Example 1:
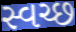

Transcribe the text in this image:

સ્વચ્છ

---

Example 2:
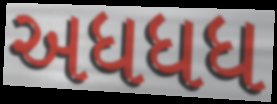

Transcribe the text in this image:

અધધધ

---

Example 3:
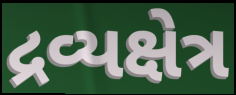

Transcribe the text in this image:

દ્રવ્યક્ષેત્ર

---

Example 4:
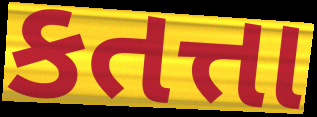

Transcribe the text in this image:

કતત્તા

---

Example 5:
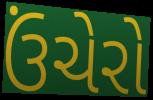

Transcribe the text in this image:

ઉંચેરો